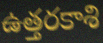
ఉత్తరకాశి